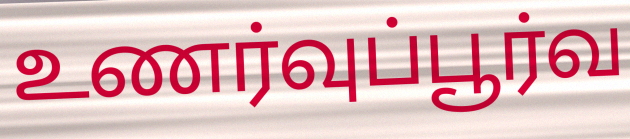
உணர்வுப்பூர்வ